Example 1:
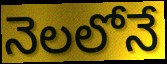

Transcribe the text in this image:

నెలలోనే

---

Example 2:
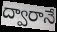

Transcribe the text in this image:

ద్వారానే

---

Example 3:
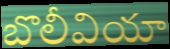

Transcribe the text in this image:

బొలీవియా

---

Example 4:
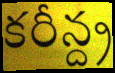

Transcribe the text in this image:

కరీన్ద్ర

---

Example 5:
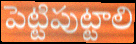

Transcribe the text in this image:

పెట్టిపుట్టాలి